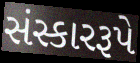
સંસ્કારરૂપે